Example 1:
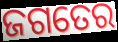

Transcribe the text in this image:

ଜଗତେର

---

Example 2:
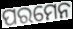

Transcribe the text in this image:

ପରମେନ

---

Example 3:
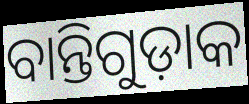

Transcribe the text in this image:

ବାନ୍ତିଗୁଡ଼ାକ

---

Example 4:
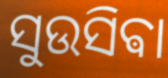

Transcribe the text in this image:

ସୁଉସିଵା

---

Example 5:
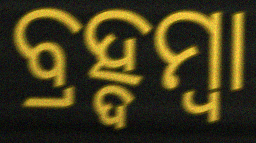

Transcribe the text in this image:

ବ୍ରହ୍ଦମ୍ବା